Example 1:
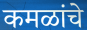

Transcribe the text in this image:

कमळांचे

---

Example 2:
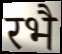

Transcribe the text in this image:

रभै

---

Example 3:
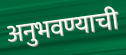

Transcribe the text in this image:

अनुभवण्याची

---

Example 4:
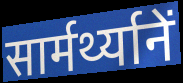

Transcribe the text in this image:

सार्मर्थ्यानें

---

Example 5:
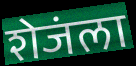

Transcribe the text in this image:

शेजंला